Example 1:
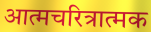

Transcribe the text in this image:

आत्मचरित्रात्मक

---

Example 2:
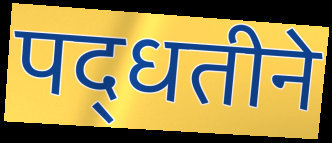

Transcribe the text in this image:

पद्धतीने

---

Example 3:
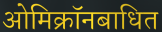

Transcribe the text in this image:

ओमिक्रॉनबाधित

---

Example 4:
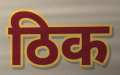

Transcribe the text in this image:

ठिक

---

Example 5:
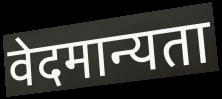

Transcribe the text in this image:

वेदमान्यता